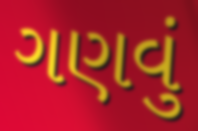
ગણવું